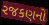
રજકણનો